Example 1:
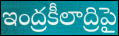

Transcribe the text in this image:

ఇంద్రకీలాద్రిపై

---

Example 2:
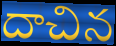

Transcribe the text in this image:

దాచిన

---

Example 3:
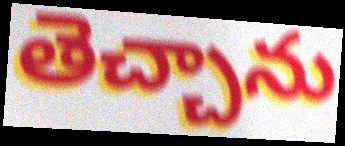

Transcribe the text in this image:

తెచ్చాను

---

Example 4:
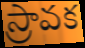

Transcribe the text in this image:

స్రావక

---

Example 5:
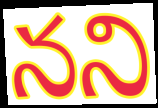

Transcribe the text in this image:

నని